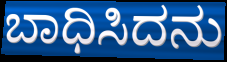
ಬಾಧಿಸಿದನು